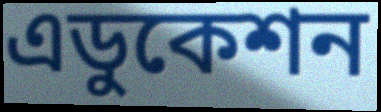
এডুকেশন